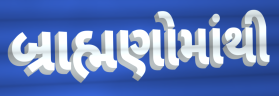
બ્રાહ્મણોમાંથી